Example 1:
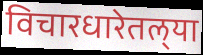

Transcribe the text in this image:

विचारधारेतल्या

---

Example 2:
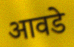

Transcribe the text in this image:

आवडे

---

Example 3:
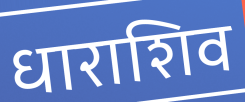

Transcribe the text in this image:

धाराशिव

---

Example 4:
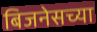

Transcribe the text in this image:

बिजनेसच्या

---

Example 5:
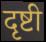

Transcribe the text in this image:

दृष्टी